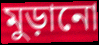
মুড়ানো